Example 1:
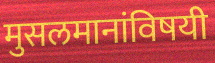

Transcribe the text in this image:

मुसलमानांविषयी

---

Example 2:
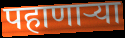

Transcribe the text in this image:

पहाणार्‍या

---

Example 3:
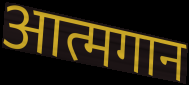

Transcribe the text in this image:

आत्मगान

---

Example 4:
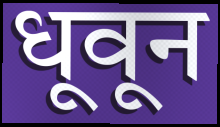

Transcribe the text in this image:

धूवून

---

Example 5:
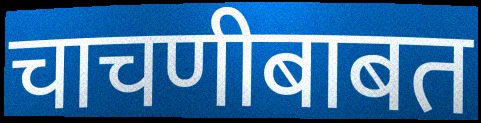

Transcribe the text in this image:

चाचणीबाबत